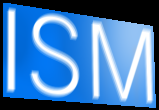
ISM